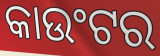
କାଉଂଟର